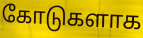
கோடுகளாக